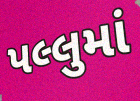
પલ્લુમાં